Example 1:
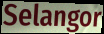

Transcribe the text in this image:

Selangor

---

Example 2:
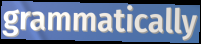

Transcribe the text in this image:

grammatically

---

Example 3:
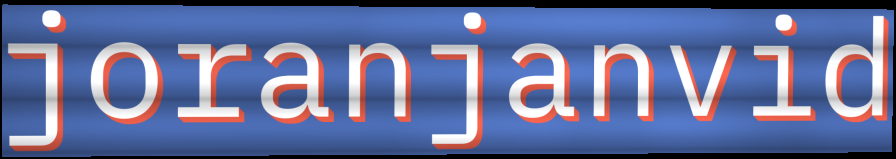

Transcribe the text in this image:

joranjanvid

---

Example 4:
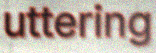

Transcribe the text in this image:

uttering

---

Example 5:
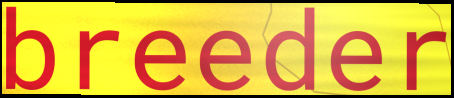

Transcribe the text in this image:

breeder